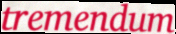
tremendum